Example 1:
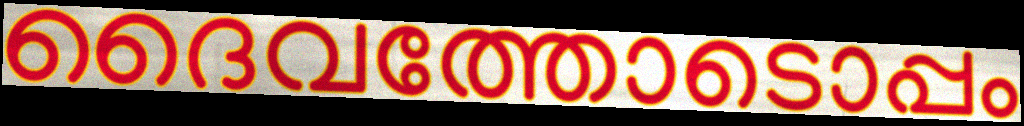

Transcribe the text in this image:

ദൈവത്തോടൊപ്പം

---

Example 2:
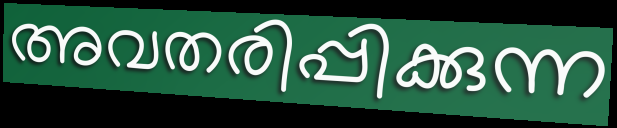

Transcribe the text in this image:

അവതരിപ്പിക്കുന്ന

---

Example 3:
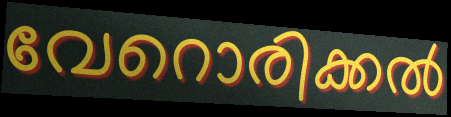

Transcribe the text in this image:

വേറൊരിക്കൽ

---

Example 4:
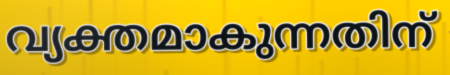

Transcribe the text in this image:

വ്യക്തമാകുന്നതിന്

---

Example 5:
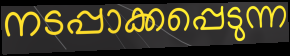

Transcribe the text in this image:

നടപ്പാക്കപ്പെടുന്ന